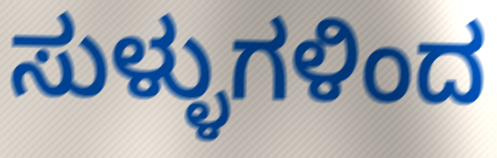
ಸುಳ್ಳುಗಳಿಂದ